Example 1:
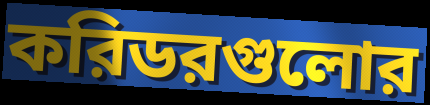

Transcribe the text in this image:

করিডরগুলোর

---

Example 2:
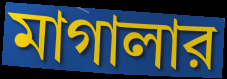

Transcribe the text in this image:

মাগালার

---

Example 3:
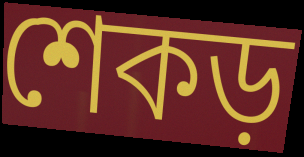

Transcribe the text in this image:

শেকড়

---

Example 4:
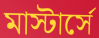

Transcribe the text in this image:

মাস্টার্সে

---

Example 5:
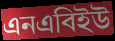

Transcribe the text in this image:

এনএবিইউ